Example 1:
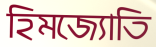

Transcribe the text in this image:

হিমজ্যোতি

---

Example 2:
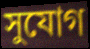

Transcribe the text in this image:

সুযোগ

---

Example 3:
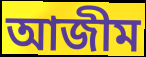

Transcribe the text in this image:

আজীম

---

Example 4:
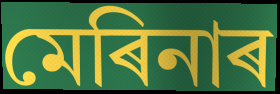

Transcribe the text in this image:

মেৰিনাৰ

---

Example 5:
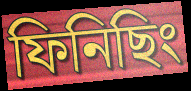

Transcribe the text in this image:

ফিনিছিং